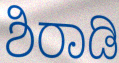
ಶಿರಾಡಿ